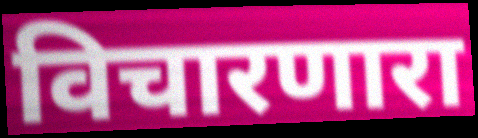
विचारणारा